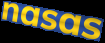
nasas